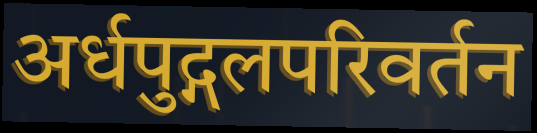
अर्धपुद्गलपरिवर्तन